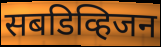
सबडिव्हिजन